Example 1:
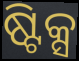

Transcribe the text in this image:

ଷ୍ଟିକ୍ସ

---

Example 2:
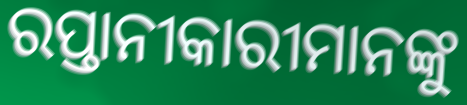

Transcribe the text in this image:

ରପ୍ତାନୀକାରୀମାନଙ୍କୁ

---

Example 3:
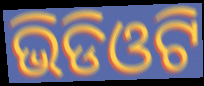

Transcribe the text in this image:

ଭିଡିଓଟି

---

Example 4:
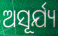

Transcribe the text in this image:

ଅସୂର୍ଯ୍ୟ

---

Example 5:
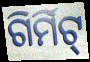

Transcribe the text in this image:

ଗିର୍ମିଟ୍